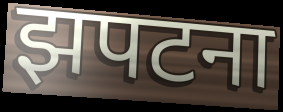
झपटना